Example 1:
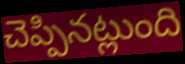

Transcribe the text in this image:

చెప్పినట్లుంది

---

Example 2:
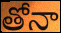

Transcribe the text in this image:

తోనా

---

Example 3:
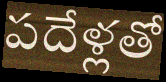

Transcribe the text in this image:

పదేళ్లతో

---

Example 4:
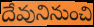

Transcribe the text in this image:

దేవునినుంచి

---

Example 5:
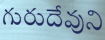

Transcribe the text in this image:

గురుదేవుని